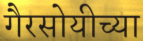
गैरसोयीच्या